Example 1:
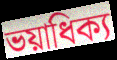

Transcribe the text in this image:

ভয়াধিক্য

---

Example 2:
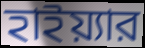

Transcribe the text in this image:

হাইয়্যার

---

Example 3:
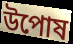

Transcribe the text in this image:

উপোষ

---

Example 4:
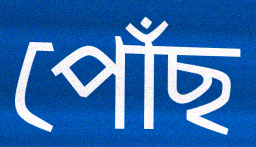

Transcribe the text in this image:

পোঁছ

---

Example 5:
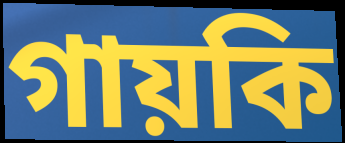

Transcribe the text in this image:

গায়কি